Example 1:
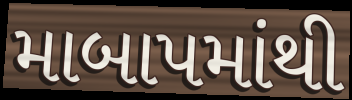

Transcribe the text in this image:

માબાપમાંથી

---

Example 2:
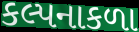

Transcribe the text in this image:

કલ્પનાકળા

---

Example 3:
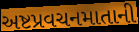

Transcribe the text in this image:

અષ્ટપ્રવચનમાતાની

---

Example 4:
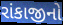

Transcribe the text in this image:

રાંકાજીનો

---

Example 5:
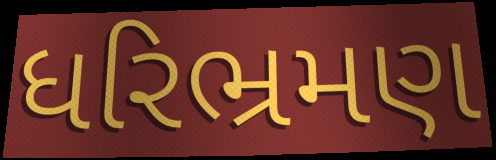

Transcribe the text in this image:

ધરિભ્રમણ